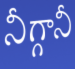
నీగ్గానీ